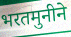
भरतमुनीने